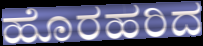
ಹೊರಹರಿದ